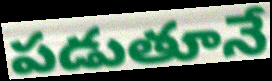
పడుతూనే